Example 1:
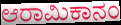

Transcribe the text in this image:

ಆರಾಮಿಕಾನಂ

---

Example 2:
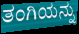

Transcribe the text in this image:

ತಂಗಿಯನ್ನು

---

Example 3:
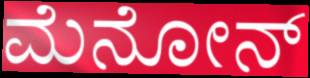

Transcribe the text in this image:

ಮೆನೋನ್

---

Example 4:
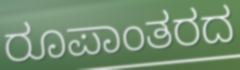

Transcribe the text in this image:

ರೂಪಾಂತರದ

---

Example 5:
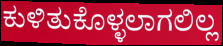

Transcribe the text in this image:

ಕುಳಿತುಕೊಳ್ಳಲಾಗಲಿಲ್ಲ